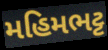
મહિમભટ્ટ